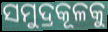
ସମୁଦ୍ରକୂଳକୁ